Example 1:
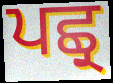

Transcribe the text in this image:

ਪਛ੍ਰ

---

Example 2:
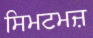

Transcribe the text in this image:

ਸਿਮਟਮਜ਼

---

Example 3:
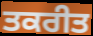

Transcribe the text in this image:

ਤਕਰੀਤ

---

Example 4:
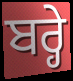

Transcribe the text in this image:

ਬਰ੍ਹੇ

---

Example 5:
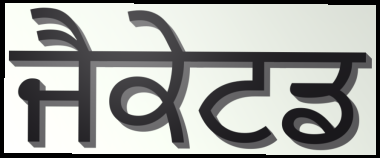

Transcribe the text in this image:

ਜੈਕੇਟਡ